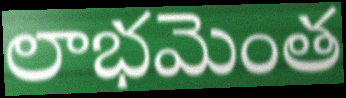
లాభమెంత